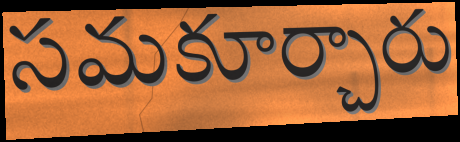
సమకూర్చారు